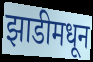
झाडीमधून